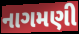
નાગમણી